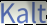
Kalt